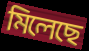
মিলেছে